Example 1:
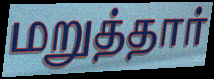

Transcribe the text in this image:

மறுத்தார்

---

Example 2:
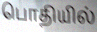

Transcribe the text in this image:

பொதியில்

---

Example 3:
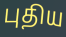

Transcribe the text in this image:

புதிய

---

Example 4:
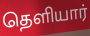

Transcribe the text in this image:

தெளியார்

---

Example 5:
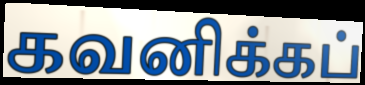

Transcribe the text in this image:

கவனிக்கப்